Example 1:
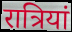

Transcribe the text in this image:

रात्रियां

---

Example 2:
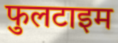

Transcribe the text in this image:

फुलटाइम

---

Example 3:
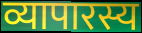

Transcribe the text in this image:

व्यापारस्य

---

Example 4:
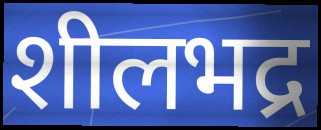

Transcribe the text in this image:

शीलभद्र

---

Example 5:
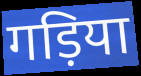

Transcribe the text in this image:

गड़िया